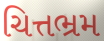
ચિત્તભ્રમ